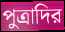
পুত্রাদির